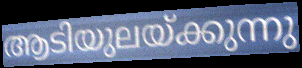
ആടിയുലയ്ക്കുന്നു